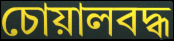
চোয়ালবদ্ধ